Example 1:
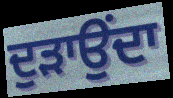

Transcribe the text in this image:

ਦੁੜਾਉਂਦਾ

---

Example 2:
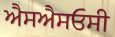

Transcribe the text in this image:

ਐਸਐਸਓਸੀ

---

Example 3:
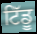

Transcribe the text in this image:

ਟਿੱਡੂ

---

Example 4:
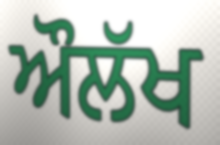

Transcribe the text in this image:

ਔਲੱਖ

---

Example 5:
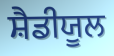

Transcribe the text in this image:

ਸ਼ੈਡੀਯੂਲ